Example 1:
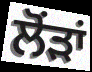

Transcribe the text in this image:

ਲੋਂੜਾਂ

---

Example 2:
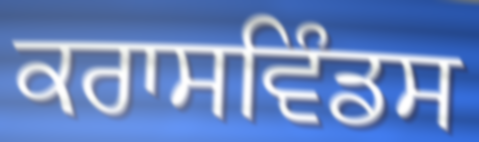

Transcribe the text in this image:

ਕਰਾਸਵਿੰਡਸ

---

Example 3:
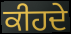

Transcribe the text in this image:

ਕੀਹਦੇ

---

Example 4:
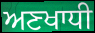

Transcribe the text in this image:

ਅਣਖਾਧੀ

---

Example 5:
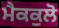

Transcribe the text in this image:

ਮੈਕਕੁਲੋ